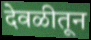
देवळीतून